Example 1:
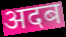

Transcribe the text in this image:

अदब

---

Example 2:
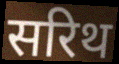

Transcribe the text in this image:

सरिथ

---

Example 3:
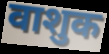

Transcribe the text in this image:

वाशुक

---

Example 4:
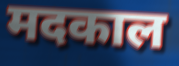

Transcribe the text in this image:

मदकाल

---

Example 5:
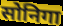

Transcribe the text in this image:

सोनिगा